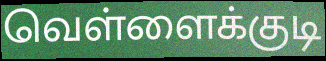
வெள்ளைக்குடி